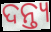
ଦନ୍ତ୍ୟ